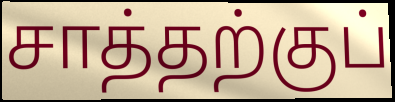
சாத்தற்குப்